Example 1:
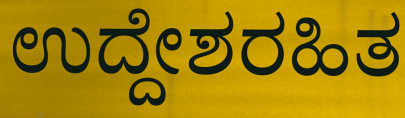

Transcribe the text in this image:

ಉದ್ದೇಶರಹಿತ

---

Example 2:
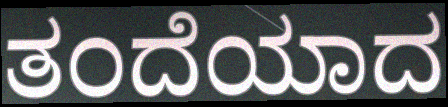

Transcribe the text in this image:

ತಂದೆಯಾದ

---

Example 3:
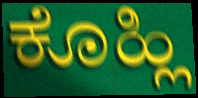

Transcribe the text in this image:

ಕೊಹ್ಲಿ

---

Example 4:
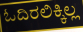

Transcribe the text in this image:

ಓದಿರಲಿಕ್ಕಿಲ್ಲ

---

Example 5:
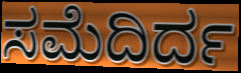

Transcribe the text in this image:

ಸಮೆದಿರ್ದ